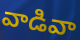
వాడివా